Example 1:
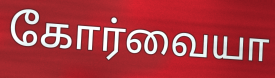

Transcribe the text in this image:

கோர்வையா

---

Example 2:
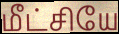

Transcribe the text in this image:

மீட்சியே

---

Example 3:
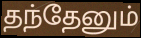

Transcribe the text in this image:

தந்தேனும்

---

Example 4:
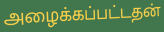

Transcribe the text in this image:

அழைக்கப்பட்டதன்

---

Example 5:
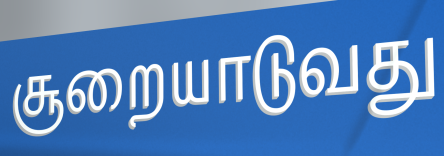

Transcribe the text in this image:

சூறையாடுவது